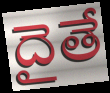
దైతే